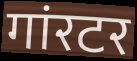
गांरटर